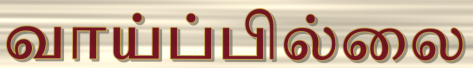
வாய்ப்பில்லை